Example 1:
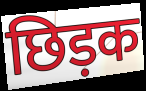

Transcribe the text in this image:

छिड़क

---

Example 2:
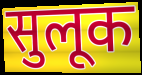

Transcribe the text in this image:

सुलूक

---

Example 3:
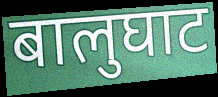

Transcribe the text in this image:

बालुघाट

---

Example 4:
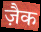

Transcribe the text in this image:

ज़ैक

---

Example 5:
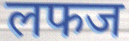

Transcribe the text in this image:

लफज